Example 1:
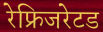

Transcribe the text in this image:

रेफ्रिजरेटड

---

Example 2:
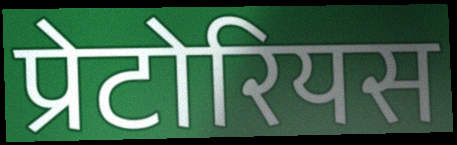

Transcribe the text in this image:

प्रेटोरियस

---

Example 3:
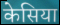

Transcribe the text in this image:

केसिया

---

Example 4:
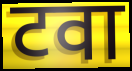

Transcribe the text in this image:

टवा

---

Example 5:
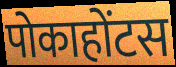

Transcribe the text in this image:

पोकाहोंटस